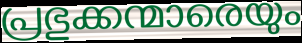
പ്രഭുക്കന്മാരെയും